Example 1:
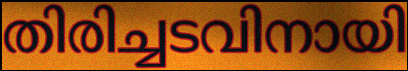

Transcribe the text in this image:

തിരിച്ചടവിനായി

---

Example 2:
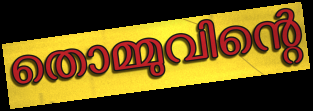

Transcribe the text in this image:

തൊമ്മുവിന്റെ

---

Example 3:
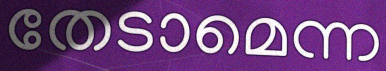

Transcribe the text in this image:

തേടാമെന്ന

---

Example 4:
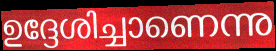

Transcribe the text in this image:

ഉദ്ദേശിച്ചാണെന്നു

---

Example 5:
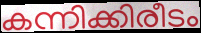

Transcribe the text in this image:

കന്നിക്കിരീടം